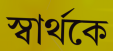
স্বার্থকে